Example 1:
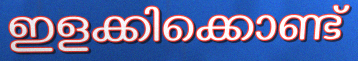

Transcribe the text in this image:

ഇളക്കിക്കൊണ്ട്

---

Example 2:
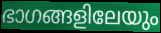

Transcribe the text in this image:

ഭാഗങ്ങളിലേയും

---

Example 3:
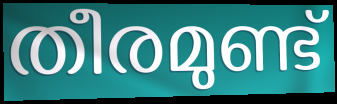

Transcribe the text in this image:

തീരമുണ്ട്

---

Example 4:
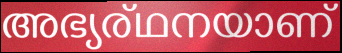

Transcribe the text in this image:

അഭ്യര്ഥനയാണ്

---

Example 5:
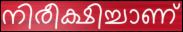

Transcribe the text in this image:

നിരീക്ഷിച്ചാണ്